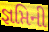
જ્ઞપ્તિની